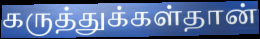
கருத்துக்கள்தான்